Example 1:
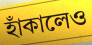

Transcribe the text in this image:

হাঁকালেও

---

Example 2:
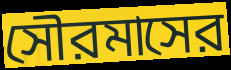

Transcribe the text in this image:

সৌরমাসের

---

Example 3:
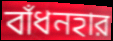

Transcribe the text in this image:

বাঁধনহার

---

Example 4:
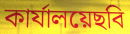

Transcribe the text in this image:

কার্যালয়েছবি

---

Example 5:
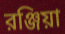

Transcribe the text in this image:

রঞ্জিয়া